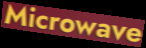
Microwave